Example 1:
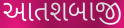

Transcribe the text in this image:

આતશબાજી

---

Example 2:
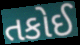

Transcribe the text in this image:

તકોઈ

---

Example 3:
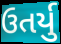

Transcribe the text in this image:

ઉતર્યુ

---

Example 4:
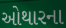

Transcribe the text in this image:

ઓથારના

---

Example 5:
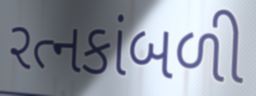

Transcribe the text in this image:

રત્નકાંબળી